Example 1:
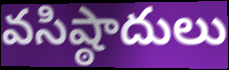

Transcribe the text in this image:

వసిష్ఠాదులు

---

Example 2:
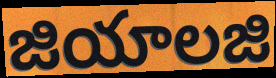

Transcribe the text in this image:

జియాలజి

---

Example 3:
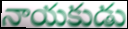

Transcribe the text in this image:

నాయకుడు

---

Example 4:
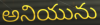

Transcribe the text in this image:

అనియును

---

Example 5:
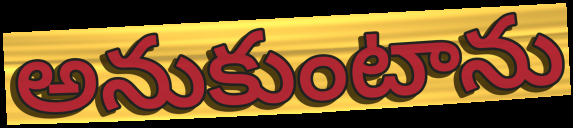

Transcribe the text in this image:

అనుకుంటాను